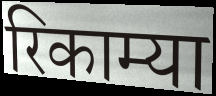
रिकाम्या